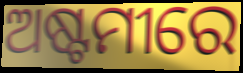
ଅଷ୍ଟମୀରେ